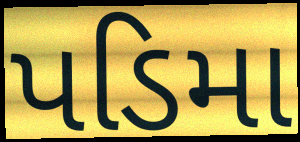
પડિમા